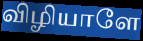
விழியாளே